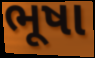
ભૂષા